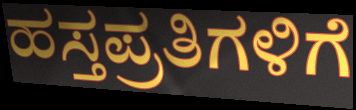
ಹಸ್ತಪ್ರತಿಗಳಿಗೆ